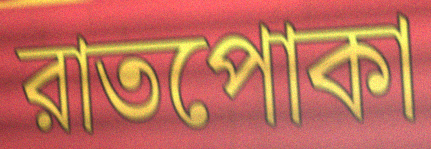
রাতপোকা